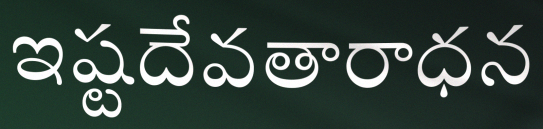
ఇష్టదేవతారాధన